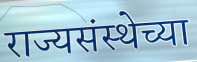
राज्यसंस्थेच्या